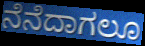
ನೆನೆದಾಗಲೂ